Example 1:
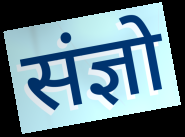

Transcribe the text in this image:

संज्ञो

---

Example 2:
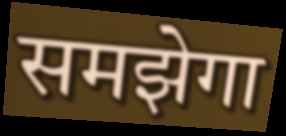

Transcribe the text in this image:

समझेगा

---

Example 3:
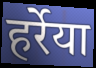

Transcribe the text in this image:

हर्रेया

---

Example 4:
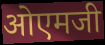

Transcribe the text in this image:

ओएमजी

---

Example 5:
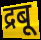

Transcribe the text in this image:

द्रबू